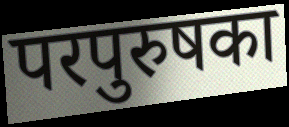
परपुरुषका